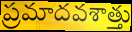
ప్రమాదవశాత్తు